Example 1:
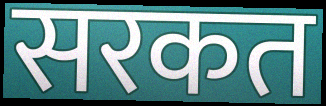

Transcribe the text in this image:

सरकत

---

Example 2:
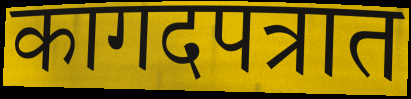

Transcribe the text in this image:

कागदपत्रात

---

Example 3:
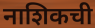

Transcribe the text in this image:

नाशिकची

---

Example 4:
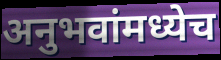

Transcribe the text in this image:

अनुभवांमध्येच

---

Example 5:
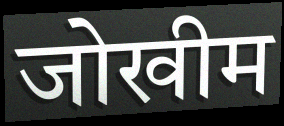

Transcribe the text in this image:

जोखीम